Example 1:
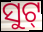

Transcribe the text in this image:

ସୁଟ୍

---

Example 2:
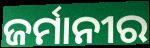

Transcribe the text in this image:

ଜର୍ମାନୀର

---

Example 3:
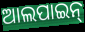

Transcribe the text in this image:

ଆଲପାଇନ୍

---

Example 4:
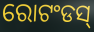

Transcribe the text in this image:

ରୋଟଂଡସ୍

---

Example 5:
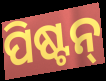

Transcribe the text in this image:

ପିଷ୍ଟନ୍